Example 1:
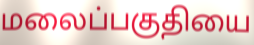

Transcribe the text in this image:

மலைப்பகுதியை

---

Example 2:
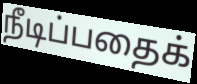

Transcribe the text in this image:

நீடிப்பதைக்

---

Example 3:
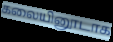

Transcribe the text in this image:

கலையினூடாக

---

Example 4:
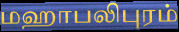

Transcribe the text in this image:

மஹாபலிபுரம்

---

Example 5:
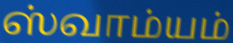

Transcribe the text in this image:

ஸ்வாம்யம்